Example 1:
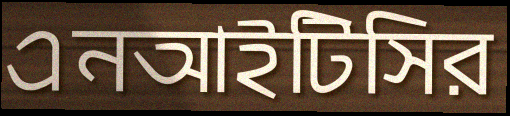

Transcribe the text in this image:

এনআইটিসির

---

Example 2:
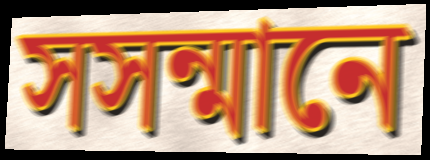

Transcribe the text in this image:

সসন্মানে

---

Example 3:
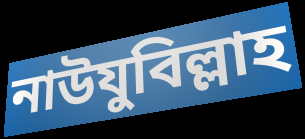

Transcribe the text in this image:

নাউযুবিল্লাহ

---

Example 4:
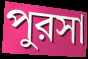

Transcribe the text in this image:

পুরসা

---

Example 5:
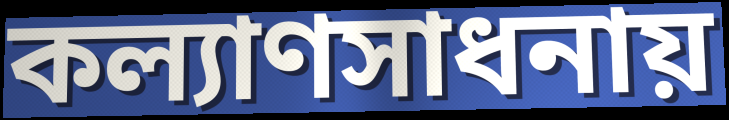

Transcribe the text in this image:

কল্যাণসাধনায়